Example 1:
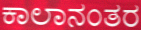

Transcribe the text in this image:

ಕಾಲಾನಂತರ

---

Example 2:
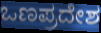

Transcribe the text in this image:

ಒಣಪ್ರದೇಶ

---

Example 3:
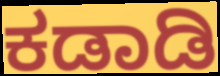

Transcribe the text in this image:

ಕಡಾಡಿ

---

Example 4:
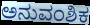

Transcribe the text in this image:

ಅನುವಂಶಿಕ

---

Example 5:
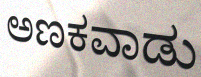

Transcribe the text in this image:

ಅಣಕವಾಡು